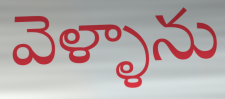
వెళ్ళాను